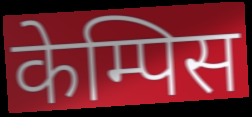
केम्पिस